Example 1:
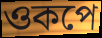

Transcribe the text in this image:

ওকপে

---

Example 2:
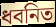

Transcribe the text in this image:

ধবনিত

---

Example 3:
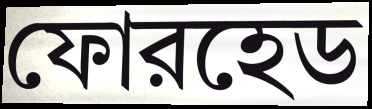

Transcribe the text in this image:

ফোরহেড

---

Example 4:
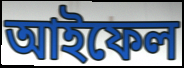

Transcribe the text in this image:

আইফেল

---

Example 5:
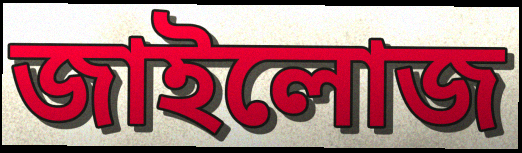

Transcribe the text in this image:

জাইলোজ